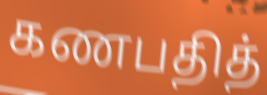
கணபதித்